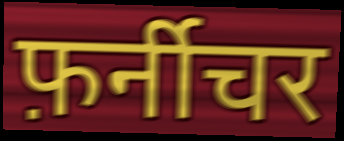
फ़र्नीचर